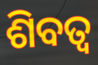
ଶିବତ୍ୱ